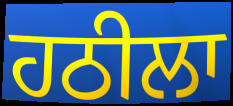
ਹਠੀਲਾ